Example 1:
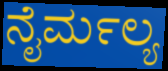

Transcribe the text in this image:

ನೈರ್ಮಲ್ಯ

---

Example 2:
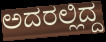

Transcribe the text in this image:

ಅದರಲ್ಲಿದ್ದ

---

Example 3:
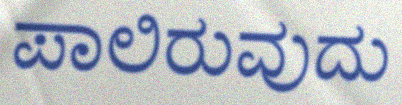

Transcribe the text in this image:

ಪಾಲಿರುವುದು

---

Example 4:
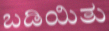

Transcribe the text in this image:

ಬಡಿಯಿತು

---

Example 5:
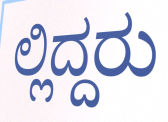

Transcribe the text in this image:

ಲ್ಲಿದ್ದರು